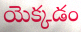
యెక్కడం